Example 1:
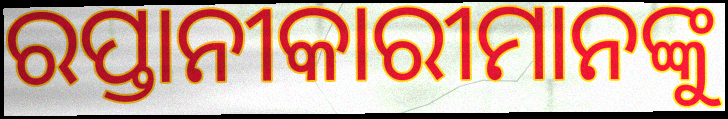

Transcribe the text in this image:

ରପ୍ତାନୀକାରୀମାନଙ୍କୁ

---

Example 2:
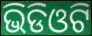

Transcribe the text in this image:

ଭିଡିଓଟି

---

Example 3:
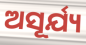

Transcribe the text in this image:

ଅସୂର୍ଯ୍ୟ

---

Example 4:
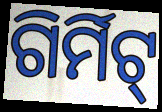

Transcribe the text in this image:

ଗିର୍ମିଟ୍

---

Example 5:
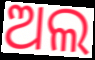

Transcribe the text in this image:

ଅଲ